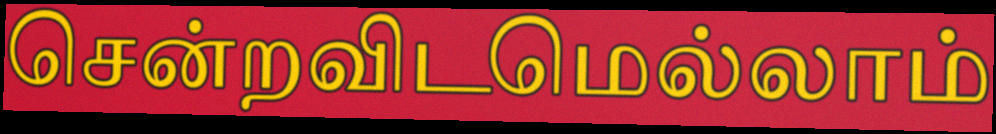
சென்றவிடமெல்லாம்